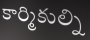
కార్మికుల్ని